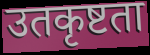
उतकृष्टता